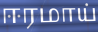
ஈரமாய்